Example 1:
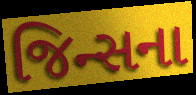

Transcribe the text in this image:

જિન્સના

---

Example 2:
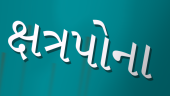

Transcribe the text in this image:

ક્ષત્રપોના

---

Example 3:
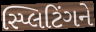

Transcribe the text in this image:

સ્પ્લિટિંગને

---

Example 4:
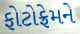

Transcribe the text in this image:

ફોટોફ્રેમને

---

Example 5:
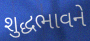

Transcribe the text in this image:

શુદ્ધભાવને